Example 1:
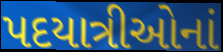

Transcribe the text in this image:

પદયાત્રીઓનાં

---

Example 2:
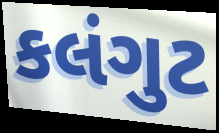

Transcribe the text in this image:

કલંગુટ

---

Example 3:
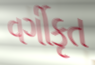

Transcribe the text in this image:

વર્ગીકૃત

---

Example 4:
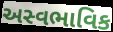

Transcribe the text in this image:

અસ્વભાવિક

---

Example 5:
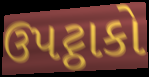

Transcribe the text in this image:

ઉપટ્ઠાકો